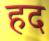
हद